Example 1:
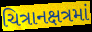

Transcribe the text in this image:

ચિત્રાનક્ષત્રમાં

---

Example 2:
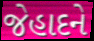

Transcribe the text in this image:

જેહાદને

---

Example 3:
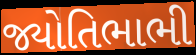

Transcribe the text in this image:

જ્યોતિભાભી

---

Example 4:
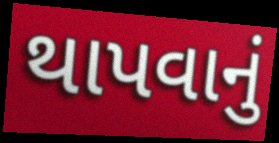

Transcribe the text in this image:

થાપવાનું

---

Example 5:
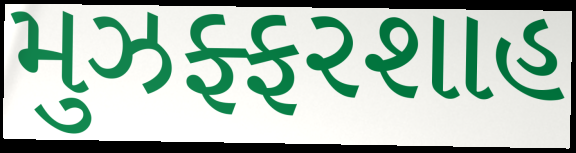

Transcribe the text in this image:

મુઝફ્ફરશાહ